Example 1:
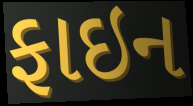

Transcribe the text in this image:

ફાઇન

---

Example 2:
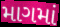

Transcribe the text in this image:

માગમાં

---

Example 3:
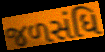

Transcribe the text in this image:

જળસંધિ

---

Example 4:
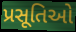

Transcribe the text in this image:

પ્રસૂતિઓ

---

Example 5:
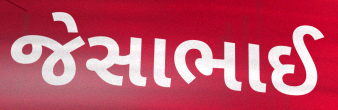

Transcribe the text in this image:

જેસાભાઈ